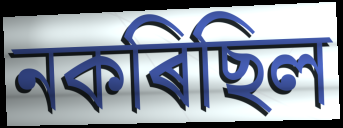
নকৰিছিল